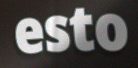
esto